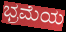
ಭ್ರಮೆಯ